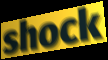
shock